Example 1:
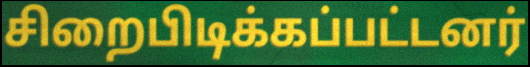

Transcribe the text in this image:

சிறைபிடிக்கப்பட்டனர்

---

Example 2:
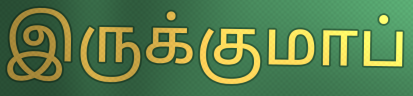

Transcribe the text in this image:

இருக்குமாப்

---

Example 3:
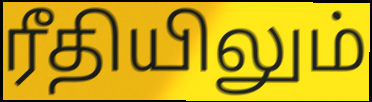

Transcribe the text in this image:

ரீதியிலும்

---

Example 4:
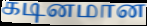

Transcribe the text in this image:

கடினமான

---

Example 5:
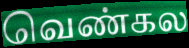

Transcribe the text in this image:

வெண்கல